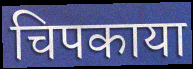
चिपकाया